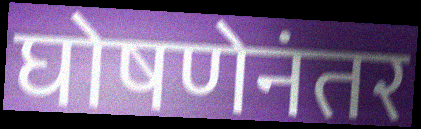
घोषणेनंतर